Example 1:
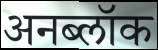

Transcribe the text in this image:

अनब्लॉक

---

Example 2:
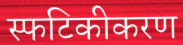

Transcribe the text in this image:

स्फटिकीकरण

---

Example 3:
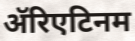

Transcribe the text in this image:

ॲरिएटिनम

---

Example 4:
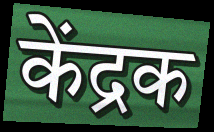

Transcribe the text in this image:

केंद्रक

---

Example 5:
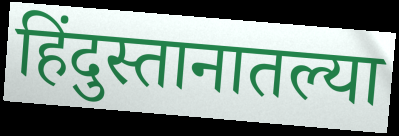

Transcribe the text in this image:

हिंदुस्तानातल्या